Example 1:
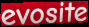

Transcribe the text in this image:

evosite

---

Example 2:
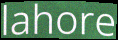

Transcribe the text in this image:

lahore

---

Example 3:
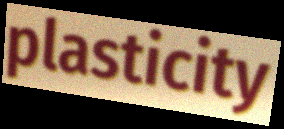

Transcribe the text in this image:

plasticity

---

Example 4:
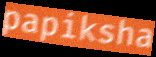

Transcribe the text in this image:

papiksha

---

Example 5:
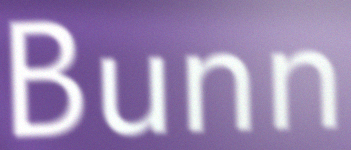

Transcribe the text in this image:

Bunn